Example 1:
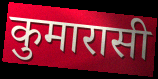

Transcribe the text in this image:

कुमारासी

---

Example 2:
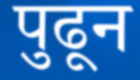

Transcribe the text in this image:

पुढून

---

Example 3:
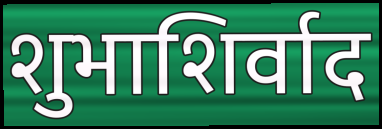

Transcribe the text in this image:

शुभाशिर्वाद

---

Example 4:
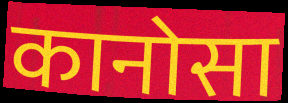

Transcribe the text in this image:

कानोसा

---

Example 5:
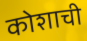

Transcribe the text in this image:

कोशाची